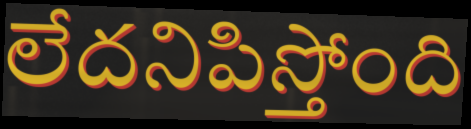
లేదనిపిస్తోంది